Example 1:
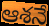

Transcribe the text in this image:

ఆశనే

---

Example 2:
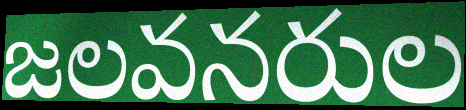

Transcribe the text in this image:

జలవనరుల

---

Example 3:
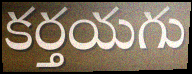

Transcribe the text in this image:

కర్తయగు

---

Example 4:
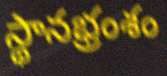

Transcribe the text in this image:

స్థానభ్రంశం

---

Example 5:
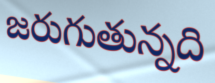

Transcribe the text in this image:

జరుగుతున్నది